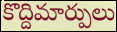
కొద్దిమార్పులు